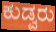
ಕುಡ್ವರು